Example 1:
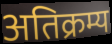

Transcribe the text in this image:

अतिक्रम्य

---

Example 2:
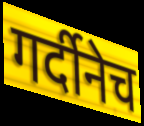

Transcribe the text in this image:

गर्दीनेच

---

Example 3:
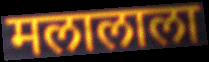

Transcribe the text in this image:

मलालाला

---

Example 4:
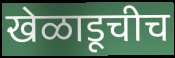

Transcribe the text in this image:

खेळाडूचीच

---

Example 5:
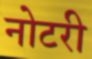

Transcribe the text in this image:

नोटरी